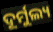
ଦୂର୍ମୁଲ୍ୟ